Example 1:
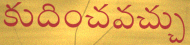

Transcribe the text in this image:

కుదించవచ్చు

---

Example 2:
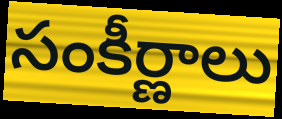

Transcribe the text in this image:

సంకీర్ణాలు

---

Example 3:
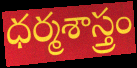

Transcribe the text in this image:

ధర్మశాస్త్రం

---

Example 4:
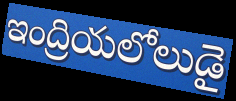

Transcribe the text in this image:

ఇంద్రియలోలుడై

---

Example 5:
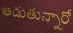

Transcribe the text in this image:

ఆడుతున్నారో